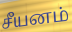
சீயனம்